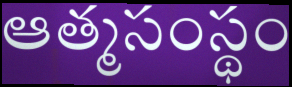
ఆత్మసంస్థం